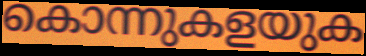
കൊന്നുകളയുക